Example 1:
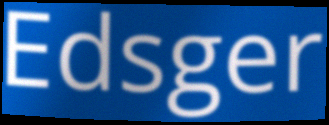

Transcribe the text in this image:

Edsger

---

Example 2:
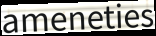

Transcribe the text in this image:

ameneties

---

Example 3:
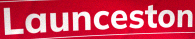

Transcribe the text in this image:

Launceston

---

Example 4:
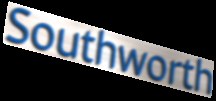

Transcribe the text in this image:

Southworth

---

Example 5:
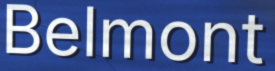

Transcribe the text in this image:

Belmont